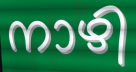
നാഴി